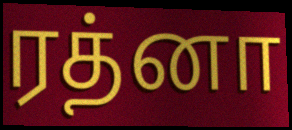
ரத்னா